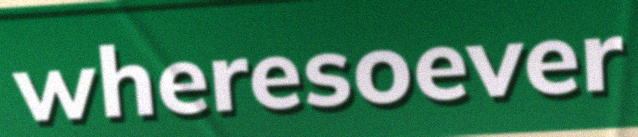
wheresoever